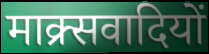
माक्र्सवादियों